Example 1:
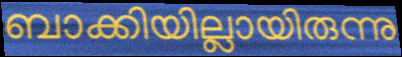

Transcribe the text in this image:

ബാക്കിയില്ലായിരുന്നു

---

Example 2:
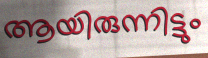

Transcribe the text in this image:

ആയിരുന്നിട്ടും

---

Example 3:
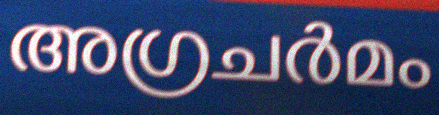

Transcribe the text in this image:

അഗ്രചർമം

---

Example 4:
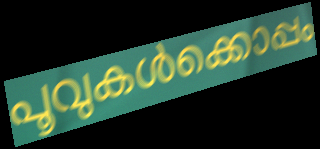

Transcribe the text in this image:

പൂവുകൾക്കൊപ്പം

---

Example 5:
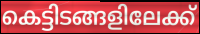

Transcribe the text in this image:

കെട്ടിടങ്ങളിലേക്ക്